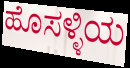
ಹೊಸಳ್ಳಿಯ